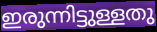
ഇരുന്നിട്ടുള്ളതു